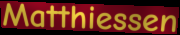
Matthiessen